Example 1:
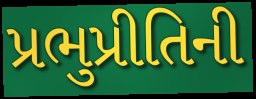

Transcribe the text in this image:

પ્રભુપ્રીતિની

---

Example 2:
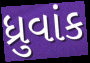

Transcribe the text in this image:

ધ્રુવાંક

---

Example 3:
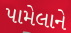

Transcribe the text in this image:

પામેલાને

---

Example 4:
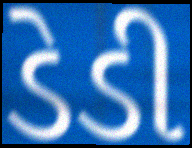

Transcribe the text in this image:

ડેડી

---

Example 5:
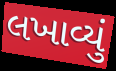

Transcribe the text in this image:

લખાવ્યું